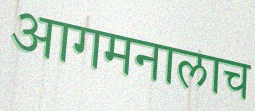
आगमनालाच